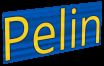
Pelin